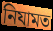
নিযামত